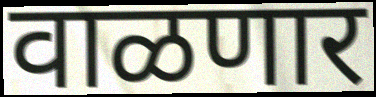
वाळणार